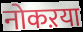
नोकऱया